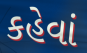
કહેવાં